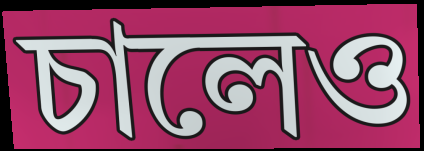
চালেও